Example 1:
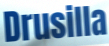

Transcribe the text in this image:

Drusilla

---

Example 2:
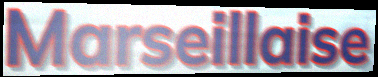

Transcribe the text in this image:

Marseillaise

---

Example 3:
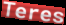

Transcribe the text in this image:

Teres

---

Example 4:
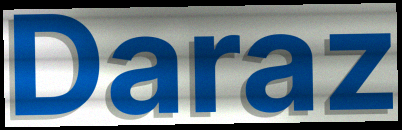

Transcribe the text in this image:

Daraz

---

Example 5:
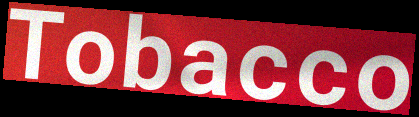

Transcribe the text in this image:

Tobacco